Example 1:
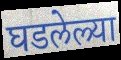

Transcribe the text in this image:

घडलेल्या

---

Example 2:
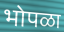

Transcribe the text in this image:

भोपळा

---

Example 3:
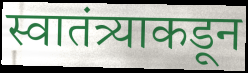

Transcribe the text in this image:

स्वातंत्र्याकडून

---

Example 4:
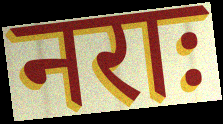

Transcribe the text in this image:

नराः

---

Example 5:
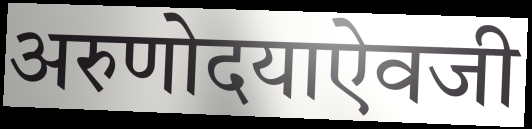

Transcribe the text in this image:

अरुणोदयाऐवजी